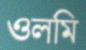
ওলমি